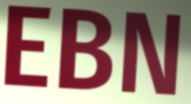
EBN